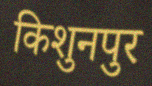
किशुनपुर